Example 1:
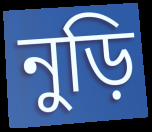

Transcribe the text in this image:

নুড়ি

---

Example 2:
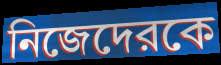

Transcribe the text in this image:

নিজেদেরকে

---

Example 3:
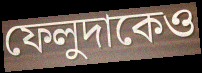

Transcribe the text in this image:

ফেলুদাকেও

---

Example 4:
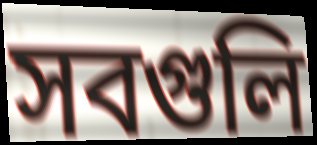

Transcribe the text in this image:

সবগুলি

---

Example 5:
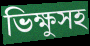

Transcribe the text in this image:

ভিক্ষুসহ